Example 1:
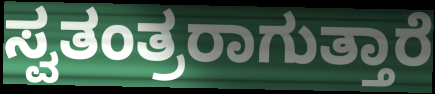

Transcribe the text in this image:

ಸ್ವತಂತ್ರರಾಗುತ್ತಾರೆ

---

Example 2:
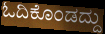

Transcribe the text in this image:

ಓದಿಕೊಂಡದ್ದು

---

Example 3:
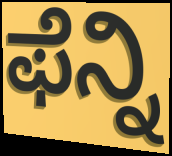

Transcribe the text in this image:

ಫೆನ್ನಿ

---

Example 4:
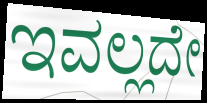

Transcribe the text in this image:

ಇವಲ್ಲದೇ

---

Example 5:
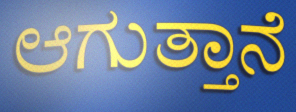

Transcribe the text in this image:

ಆಗುತ್ತಾನೆ